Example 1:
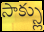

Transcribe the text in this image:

సాక్స్లు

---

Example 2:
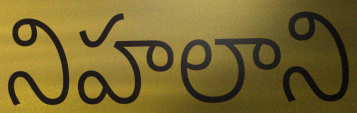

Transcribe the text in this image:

నిహలాని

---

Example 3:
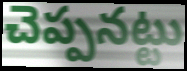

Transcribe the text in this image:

చెప్పనట్టు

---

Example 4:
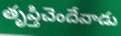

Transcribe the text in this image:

తృప్తిచెందేవాడు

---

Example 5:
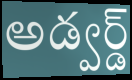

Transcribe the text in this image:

అడ్వర్డ్